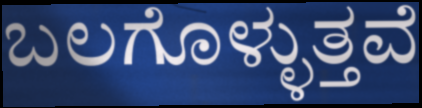
ಬಲಗೊಳ್ಳುತ್ತವೆ